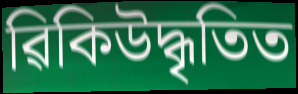
ৱিকিউদ্ধৃতিত